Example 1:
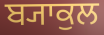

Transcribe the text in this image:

ਬ੍ਯਾਕੁਲ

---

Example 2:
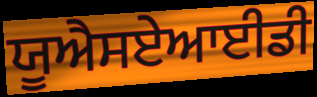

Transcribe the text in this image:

ਯੂਐਸਏਆਈਡੀ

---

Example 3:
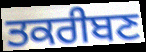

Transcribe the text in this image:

ਤਕਰੀਬਣ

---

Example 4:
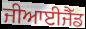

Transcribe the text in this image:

ਜੀਆਈਜੈੱਡ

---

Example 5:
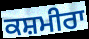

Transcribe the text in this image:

ਕਸ਼ਮੀਰਾ